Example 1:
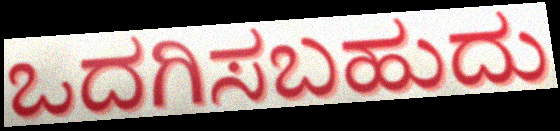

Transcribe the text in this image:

ಒದಗಿಸಬಹುದು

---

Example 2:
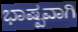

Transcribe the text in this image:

ಭಾಷ್ಪವಾಗಿ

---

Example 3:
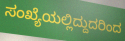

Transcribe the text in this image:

ಸಂಖ್ಯೆಯಲ್ಲಿದ್ದುದರಿಂದ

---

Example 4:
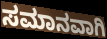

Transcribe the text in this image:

ಸಮಾನವಾಗಿ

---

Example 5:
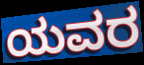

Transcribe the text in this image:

ಯವರ